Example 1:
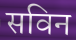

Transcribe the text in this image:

सविन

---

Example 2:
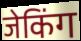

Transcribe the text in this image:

जेकिंग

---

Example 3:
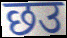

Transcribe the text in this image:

छउ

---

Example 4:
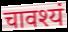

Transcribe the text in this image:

चावश्यं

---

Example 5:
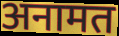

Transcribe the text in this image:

अनामत